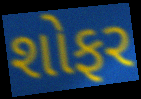
શોફર